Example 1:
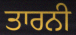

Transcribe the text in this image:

ਤਾਰਨੀ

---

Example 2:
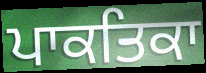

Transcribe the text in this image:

ਪਾਕਤਿਕਾ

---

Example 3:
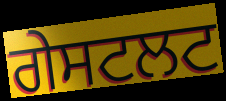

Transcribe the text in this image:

ਗੇਸਟਲਟ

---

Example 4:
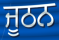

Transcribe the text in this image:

ਜੂਠਨ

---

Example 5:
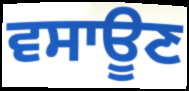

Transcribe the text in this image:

ਵਸਾਊਣ